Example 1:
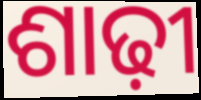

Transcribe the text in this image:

ଶାଢ଼ୀ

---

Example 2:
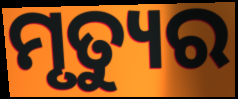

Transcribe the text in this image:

ମୃତ୍ୟୁର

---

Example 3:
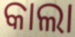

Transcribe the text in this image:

କାଲା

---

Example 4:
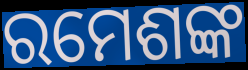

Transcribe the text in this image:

ରମେଶଙ୍କ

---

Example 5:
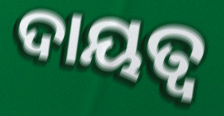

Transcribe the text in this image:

ଦାୟତ୍ବ